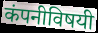
कंपनीविषयी